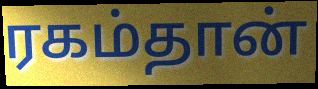
ரகம்தான்